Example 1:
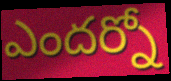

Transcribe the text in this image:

ఎందర్నో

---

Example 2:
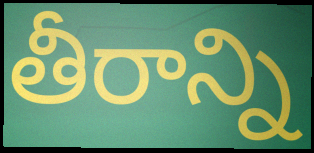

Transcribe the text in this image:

తీరాన్ని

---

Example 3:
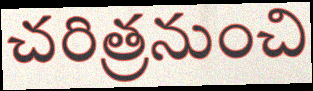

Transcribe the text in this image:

చరిత్రనుంచి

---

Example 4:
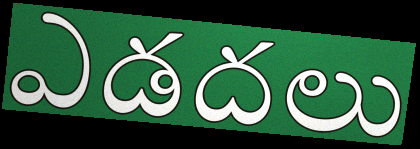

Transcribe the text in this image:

ఎడదలు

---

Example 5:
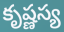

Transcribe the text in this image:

కృష్ణస్య